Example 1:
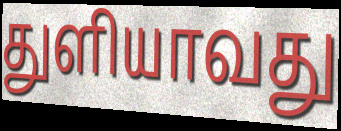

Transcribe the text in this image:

துளியாவது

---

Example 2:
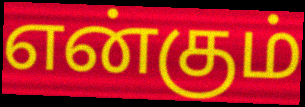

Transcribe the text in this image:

என்கும்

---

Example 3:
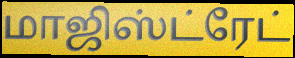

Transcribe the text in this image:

மாஜிஸ்ட்ரேட்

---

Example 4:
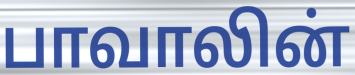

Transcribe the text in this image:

பாவாலின்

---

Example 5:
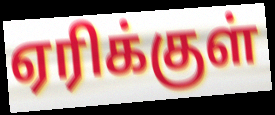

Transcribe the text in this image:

ஏரிக்குள்